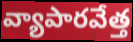
వ్యాపారవేత్త